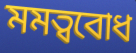
মমত্ববোধ